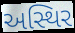
અસ્થિર